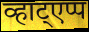
व्हाट्एप्प